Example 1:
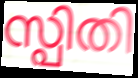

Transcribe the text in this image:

സ്പിതി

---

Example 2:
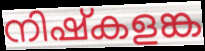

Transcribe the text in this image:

നിഷ്കളങ്ക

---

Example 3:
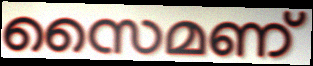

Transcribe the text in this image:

സൈമണ്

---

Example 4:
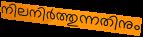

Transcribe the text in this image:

നിലനിർത്തുന്നതിനും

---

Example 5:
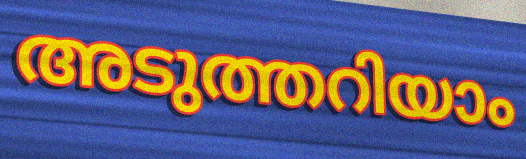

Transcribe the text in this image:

അടുത്തറിയാം